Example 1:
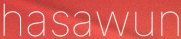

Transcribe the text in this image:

hasawun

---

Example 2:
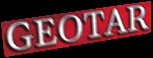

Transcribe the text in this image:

GEOTAR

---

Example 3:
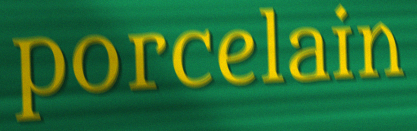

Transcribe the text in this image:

porcelain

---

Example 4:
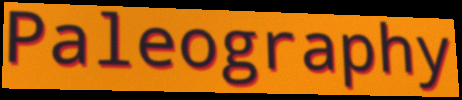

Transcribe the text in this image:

Paleography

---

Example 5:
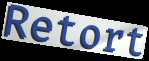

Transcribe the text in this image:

Retort